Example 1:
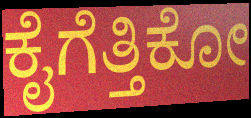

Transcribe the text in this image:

ಕೈಗೆತ್ತಿಕೋ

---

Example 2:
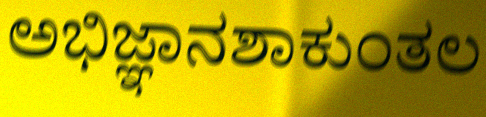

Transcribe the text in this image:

ಅಭಿಜ್ಞಾನಶಾಕುಂತಲ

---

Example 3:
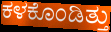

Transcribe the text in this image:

ಕಳಕೊಂಡಿತ್ತು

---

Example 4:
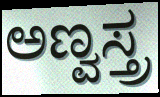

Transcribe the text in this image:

ಅಣ್ವಸ್ತ್ರ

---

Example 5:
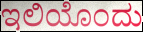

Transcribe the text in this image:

ಇಲಿಯೊಂದು